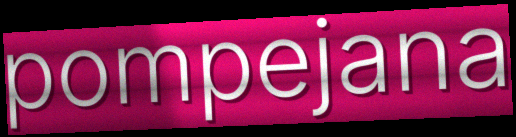
pompejana